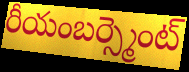
రీయంబర్స్మెంట్